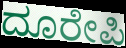
ದೂರೇಪಿ